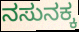
ನಸುನಕ್ಕ